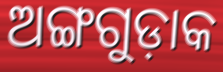
ଅଙ୍ଗଗୁଡ଼ାକ